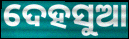
ଦେହସୁଆ